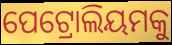
ପେଟ୍ରୋଲିୟମକୁ